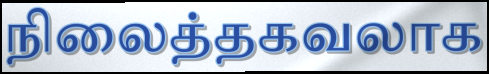
நிலைத்தகவலாக